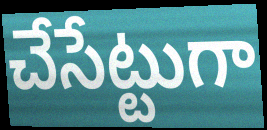
చేసేట్టుగా